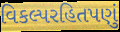
વિકલ્પરહિતપણું